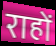
राहों